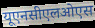
यूएनसीएलओएस